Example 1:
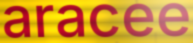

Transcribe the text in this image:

aracee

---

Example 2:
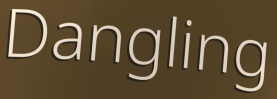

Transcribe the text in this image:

Dangling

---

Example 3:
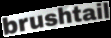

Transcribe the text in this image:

brushtail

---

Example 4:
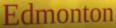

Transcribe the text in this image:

Edmonton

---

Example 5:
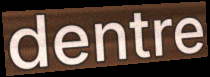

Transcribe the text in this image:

dentre